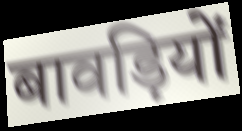
बावड़ियों